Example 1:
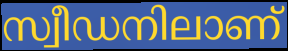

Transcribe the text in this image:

സ്വീഡനിലാണ്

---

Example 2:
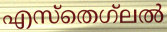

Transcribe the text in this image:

എസ്തെഗ്‌ലൽ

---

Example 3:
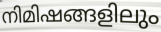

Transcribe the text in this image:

നിമിഷങ്ങളിലും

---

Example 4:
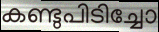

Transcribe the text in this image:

കണ്ടുപിടിച്ചോ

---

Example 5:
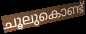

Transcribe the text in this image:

ചൂലുകൊണ്ട്